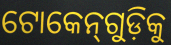
ଟୋକେନ୍‌ଗୁଡ଼ିକୁ